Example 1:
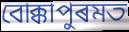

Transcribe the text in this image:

বোক্কাপুৰমত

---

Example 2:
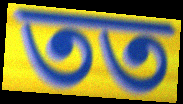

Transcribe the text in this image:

তত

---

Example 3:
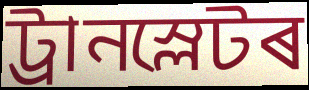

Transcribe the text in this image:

ট্ৰানস্লেটৰ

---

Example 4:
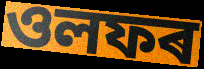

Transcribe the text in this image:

ওলফৰ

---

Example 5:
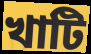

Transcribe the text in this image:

খাটি